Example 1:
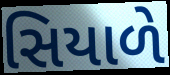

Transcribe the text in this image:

સિયાળે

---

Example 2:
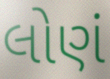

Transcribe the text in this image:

લોણં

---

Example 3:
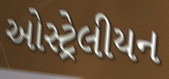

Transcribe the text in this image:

ઓસ્ટ્રેલીયન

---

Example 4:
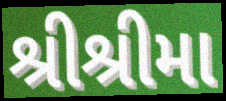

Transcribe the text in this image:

શ્રીશ્રીમા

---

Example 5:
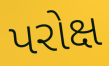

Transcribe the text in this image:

પરોક્ષ